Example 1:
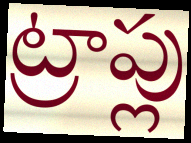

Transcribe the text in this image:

ట్రాప్లు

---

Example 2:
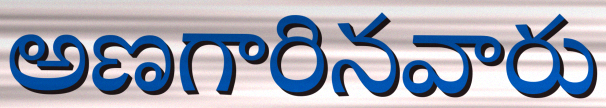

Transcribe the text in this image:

అణగారినవారు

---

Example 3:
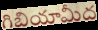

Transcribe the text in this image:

గిబియామీద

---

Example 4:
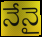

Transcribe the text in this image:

నేనై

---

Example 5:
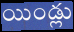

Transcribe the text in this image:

యిండ్లు